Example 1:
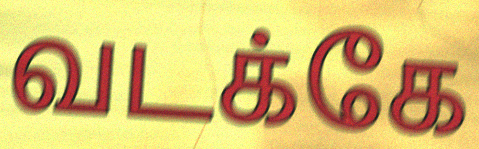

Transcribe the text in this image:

வடக்கே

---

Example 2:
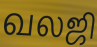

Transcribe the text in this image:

வலஜி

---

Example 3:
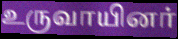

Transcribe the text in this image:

உருவாயினர்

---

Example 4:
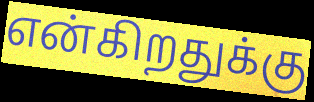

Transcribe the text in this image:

என்கிறதுக்கு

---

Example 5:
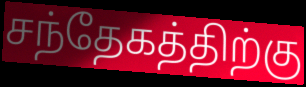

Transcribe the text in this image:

சந்தேகத்திற்கு